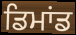
ਡਿਮਾਂਡ